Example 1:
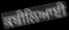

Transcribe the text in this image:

ਕਬੀਲਿਆਈ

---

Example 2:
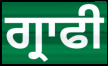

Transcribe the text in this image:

ਗ੍ਰਾਫੀ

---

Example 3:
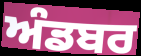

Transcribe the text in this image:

ਅੰਡਬਰ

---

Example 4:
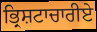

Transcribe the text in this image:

ਭ੍ਰਿਸ਼ਟਾਚਾਰੀਏ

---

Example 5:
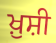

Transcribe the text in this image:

ਖ਼ੁਸ਼ੀ